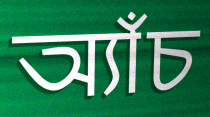
অ্যাঁচ